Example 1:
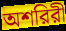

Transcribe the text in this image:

অশরিরী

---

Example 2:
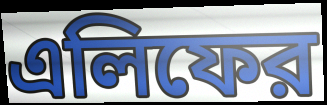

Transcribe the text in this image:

এলিফের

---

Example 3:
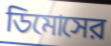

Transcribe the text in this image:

ডিমোসের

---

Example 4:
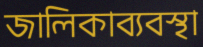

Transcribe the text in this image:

জালিকাব্যবস্থা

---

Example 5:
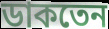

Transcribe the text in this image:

ডাকতেন